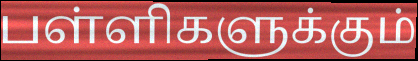
பள்ளிகளுக்கும்